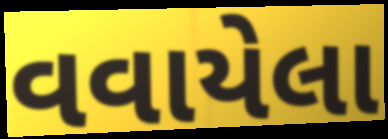
વવાયેલા